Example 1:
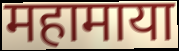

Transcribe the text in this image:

महामाया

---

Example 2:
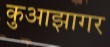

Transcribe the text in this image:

कुआझागर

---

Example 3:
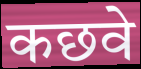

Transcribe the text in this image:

कछवे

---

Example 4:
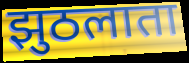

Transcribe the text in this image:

झुठलाता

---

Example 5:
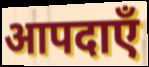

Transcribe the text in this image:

आपदाएँ